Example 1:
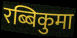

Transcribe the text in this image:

रब्बिकुमा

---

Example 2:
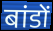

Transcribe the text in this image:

बांडों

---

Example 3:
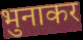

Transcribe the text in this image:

भुनाकर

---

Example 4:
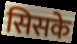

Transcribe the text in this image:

सिसके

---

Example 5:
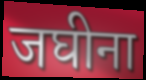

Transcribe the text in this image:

जघीना